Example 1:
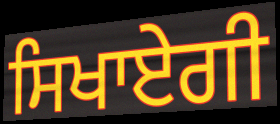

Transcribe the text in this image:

ਸਿਖਾਏਗੀ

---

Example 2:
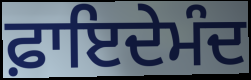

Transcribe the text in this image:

ਫ਼ਾਇਦੇਮੰਦ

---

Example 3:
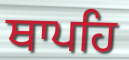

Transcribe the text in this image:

ਥਾਪਹਿ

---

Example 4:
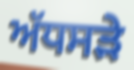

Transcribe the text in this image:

ਅੱਧਸੜੇ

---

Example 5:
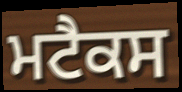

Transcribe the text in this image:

ਮਟੈਕਸ